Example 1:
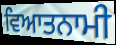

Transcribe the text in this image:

ਵਿਆਤਨਾਮੀ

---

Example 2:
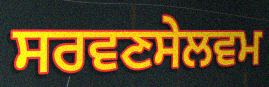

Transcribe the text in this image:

ਸਰਵਣਸੇਲਵਮ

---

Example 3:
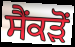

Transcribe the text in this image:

ਸੈਂਕੜੋਂ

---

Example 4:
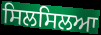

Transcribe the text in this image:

ਸਿਲਸਿਲਆ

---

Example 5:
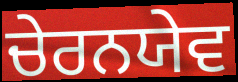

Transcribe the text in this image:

ਚੇਰਨਯੇਵ